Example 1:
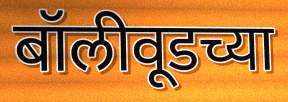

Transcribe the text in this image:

बॉलीवूडच्या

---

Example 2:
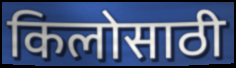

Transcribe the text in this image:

किलोसाठी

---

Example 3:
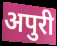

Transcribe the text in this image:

अपुरी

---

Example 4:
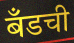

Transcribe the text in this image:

बँडची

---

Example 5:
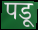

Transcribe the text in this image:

पडू